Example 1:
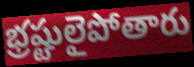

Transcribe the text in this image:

భ్రష్టులైపోతారు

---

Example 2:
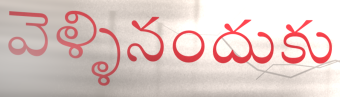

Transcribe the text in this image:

వెళ్ళినందుకు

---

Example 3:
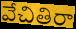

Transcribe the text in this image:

వేచితిరా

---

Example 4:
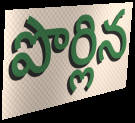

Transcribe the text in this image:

పొర్లిన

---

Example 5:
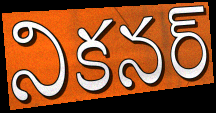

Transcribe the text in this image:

నికనర్